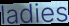
ladies